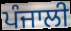
ਪੰਜਾਲੀ